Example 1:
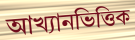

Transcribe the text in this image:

আখ্যানভিত্তিক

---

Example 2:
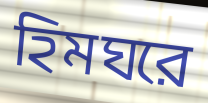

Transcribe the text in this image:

হিমঘরে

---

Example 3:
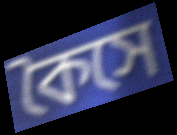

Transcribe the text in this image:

কৈসে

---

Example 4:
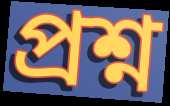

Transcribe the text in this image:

প্রশ্ন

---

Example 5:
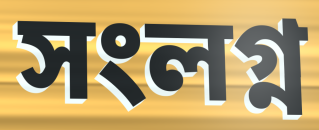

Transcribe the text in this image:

সংলগ্ন